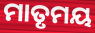
ମାତୃମୟ